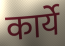
कार्ये